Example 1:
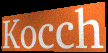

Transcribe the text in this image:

Kocch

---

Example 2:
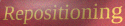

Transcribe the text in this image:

Repositioning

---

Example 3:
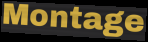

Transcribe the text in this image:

Montage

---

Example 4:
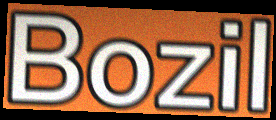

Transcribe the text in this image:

Bozil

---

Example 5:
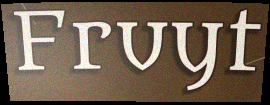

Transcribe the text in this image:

Fruyt